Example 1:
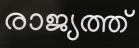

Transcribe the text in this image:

രാജ്യത്ത്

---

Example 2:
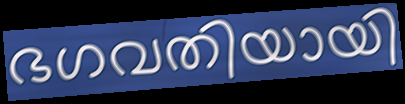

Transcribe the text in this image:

ഭഗവതിയായി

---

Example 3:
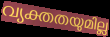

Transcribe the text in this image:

വ്യക്തതയുമില്ല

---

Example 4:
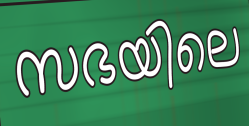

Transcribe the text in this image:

സഭയിലെ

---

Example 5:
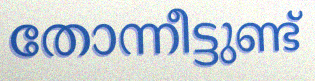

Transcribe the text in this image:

തോന്നീട്ടുണ്ട്